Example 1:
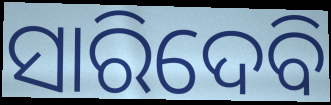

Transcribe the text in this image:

ସାରିଦେବି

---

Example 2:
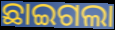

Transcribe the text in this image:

ଛାଇଗଲା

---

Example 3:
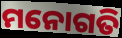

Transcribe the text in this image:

ମନୋଗତି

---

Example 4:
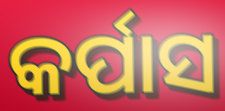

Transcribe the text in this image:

କର୍ପାସ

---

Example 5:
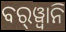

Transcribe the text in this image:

ବର୍‍ୱ୍ୱାନି